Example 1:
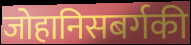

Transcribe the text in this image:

जोहानिसबर्गकी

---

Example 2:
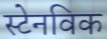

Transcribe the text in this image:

स्टेनविक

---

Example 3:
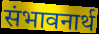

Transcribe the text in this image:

संभावनार्थ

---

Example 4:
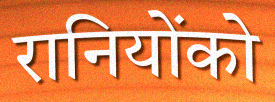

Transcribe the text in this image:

रानियोंको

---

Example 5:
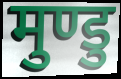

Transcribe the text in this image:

मुण्डु